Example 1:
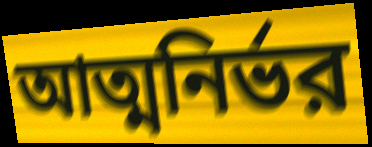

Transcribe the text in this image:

আত্মনির্ভর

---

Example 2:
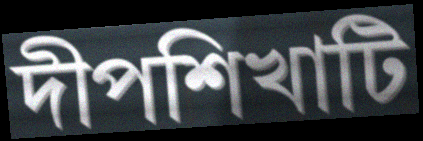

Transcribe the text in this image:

দীপশিখাটি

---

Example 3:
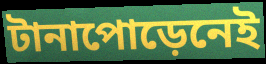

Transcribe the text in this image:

টানাপোড়েনেই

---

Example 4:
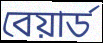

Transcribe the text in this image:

বেয়ার্ড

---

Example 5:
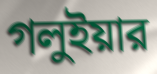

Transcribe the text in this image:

গলুইয়ার